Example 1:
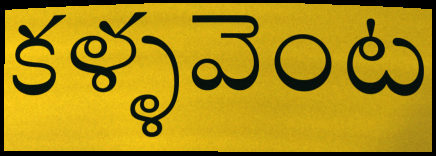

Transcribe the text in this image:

కళ్ళవెంట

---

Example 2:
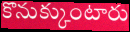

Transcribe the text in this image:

కొనుక్కుంటారు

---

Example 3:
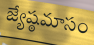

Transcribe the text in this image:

జ్యేష్ఠమాసం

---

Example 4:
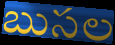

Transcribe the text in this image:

బుసల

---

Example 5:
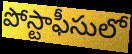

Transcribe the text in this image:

పోస్టాఫీసులో